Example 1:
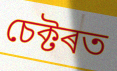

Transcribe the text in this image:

চেক্টৰত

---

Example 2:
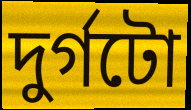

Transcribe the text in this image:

দুৰ্গটো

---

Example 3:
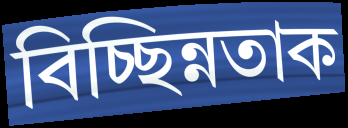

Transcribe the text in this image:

বিচ্ছিন্নতাক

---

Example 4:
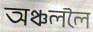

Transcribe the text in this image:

অঞ্চললৈ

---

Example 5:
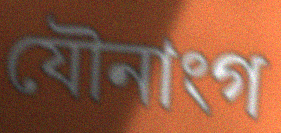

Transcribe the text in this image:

যৌনাংগ